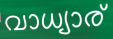
വാധ്യാര്